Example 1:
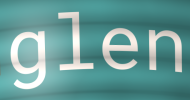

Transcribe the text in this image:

glen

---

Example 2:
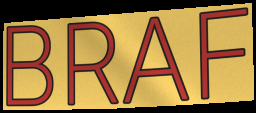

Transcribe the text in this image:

BRAF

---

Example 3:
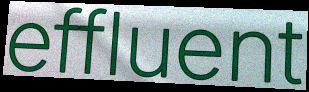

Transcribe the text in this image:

effluent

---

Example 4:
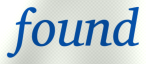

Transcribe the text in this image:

found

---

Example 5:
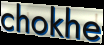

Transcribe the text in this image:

chokhe